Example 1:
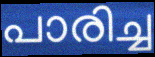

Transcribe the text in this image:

പാരിച്ച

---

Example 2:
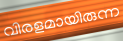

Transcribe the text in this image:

വിരളമായിരുന്ന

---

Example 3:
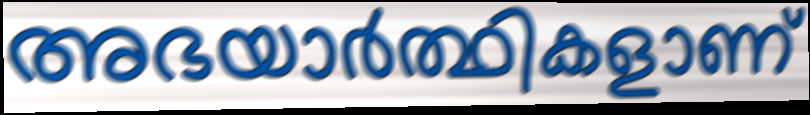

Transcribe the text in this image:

അഭയാർത്ഥികളാണ്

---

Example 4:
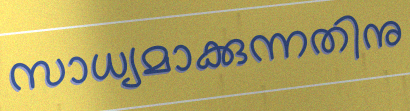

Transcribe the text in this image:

സാധ്യമാക്കുന്നതിനു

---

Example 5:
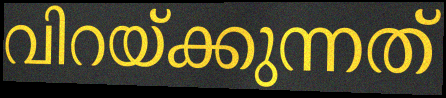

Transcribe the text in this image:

വിറയ്ക്കുന്നത്